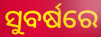
ସୁବର୍ଷରେ